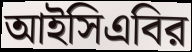
আইসিএবির